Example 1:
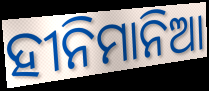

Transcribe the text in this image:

ହୀନିମାନିଆ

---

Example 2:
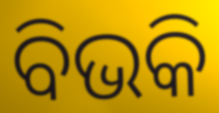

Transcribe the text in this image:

ବିଭକି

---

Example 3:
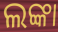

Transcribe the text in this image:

ଲଙ୍କା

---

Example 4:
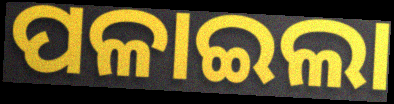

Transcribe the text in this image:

ପଳାଇଲା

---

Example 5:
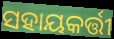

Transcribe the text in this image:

ସହାୟକର୍ତ୍ତୀ